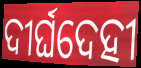
ଦୀର୍ଘଦେହୀ